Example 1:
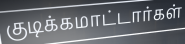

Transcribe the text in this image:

குடிக்கமாட்டார்கள்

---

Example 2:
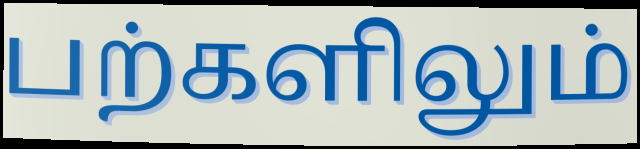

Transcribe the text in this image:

பற்களிலும்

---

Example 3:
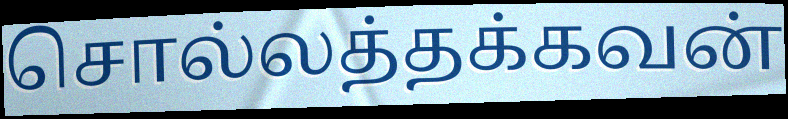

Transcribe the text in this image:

சொல்லத்தக்கவன்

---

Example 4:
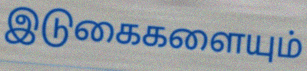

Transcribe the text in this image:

இடுகைகளையும்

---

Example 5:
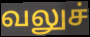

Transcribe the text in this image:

வலுச்